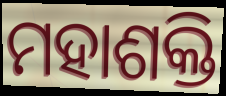
ମହାଶକ୍ତି